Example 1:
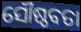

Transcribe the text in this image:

ସୌଷ୍ଠବତା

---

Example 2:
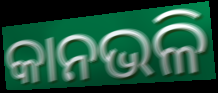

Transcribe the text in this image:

କାନଭଳି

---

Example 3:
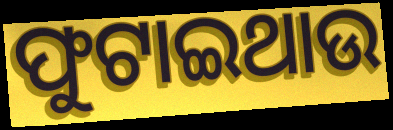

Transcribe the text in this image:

ଫୁଟାଇଥାଉ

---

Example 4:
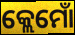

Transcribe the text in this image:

କ୍ଲେମୋଁ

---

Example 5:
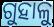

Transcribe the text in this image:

ଗୁହାଳୁ